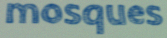
mosques